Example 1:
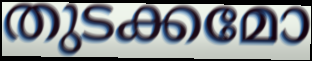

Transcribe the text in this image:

തുടക്കമോ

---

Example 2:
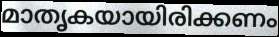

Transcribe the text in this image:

മാതൃകയായിരിക്കണം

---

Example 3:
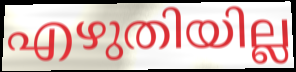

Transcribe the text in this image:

എഴുതിയില്ല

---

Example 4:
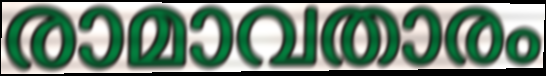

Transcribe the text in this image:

രാമാവതാരം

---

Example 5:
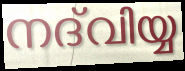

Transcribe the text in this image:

നദ്‌വിയ്യ